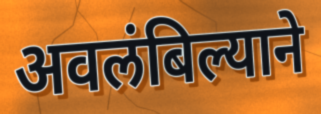
अवलंबिल्याने